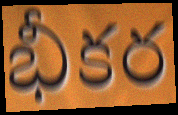
భీకర